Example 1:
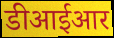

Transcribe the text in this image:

डीआईआर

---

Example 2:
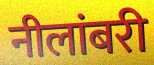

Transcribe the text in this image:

नीलांबरी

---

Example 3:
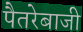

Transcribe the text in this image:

पैतरेबाजी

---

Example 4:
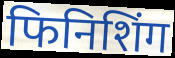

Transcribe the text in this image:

फिनिशिंग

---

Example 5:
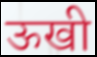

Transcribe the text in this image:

ऊखी